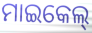
ମାଇକେଲ୍